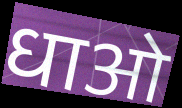
धाओ